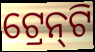
ଟ୍ରେନ୍‌ଟି